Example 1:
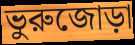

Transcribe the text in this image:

ভুরুজোড়া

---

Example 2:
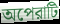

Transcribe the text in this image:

অপেরাটি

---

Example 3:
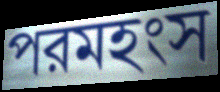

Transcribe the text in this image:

পরমহংস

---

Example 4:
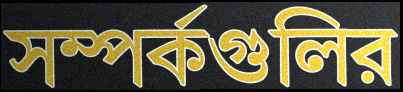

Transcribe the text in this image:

সম্পর্কগুলির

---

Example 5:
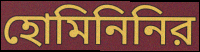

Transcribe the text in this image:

হোমিনিনির